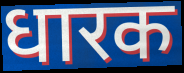
धारक